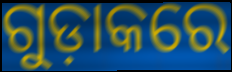
ଗୁଡ଼ାକରେ